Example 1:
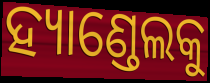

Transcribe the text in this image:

ହ୍ୟାଣ୍ଡେଲକୁ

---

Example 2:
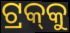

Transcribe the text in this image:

ଟ୍ରକ୍‍କୁ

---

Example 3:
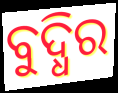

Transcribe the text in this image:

ବୁଦ୍ଧିର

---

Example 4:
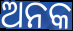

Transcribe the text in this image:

ଅନକ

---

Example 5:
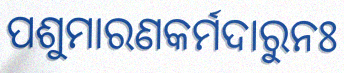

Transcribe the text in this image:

ପଶୁମାରଣକର୍ମଦାରୁନଃ